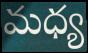
మధ్య